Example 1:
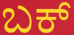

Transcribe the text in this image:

ಬಕ್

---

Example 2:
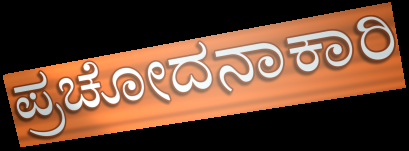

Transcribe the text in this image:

ಪ್ರಚೋದನಾಕಾರಿ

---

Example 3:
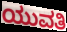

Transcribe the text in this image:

ಯುವತಿ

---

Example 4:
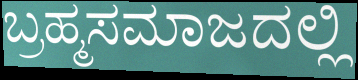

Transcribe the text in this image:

ಬ್ರಹ್ಮಸಮಾಜದಲ್ಲಿ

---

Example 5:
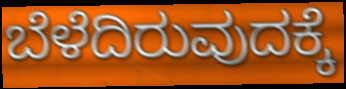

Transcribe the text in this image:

ಬೆಳೆದಿರುವುದಕ್ಕೆ